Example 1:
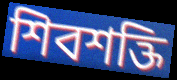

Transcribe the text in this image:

শিবশক্তি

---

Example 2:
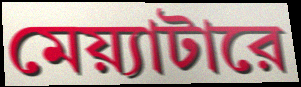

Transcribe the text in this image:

মেয়্যাটারে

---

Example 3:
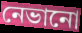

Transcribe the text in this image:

নেভানো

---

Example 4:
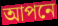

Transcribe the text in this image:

আপনে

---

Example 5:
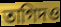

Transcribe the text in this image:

তাগিদও